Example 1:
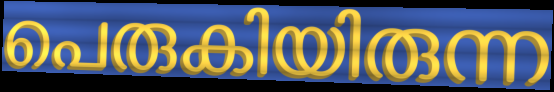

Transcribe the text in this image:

പെരുകിയിരുന്ന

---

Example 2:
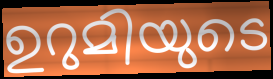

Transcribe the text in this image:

ഉറുമിയുടെ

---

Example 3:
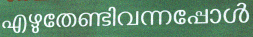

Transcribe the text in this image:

എഴുതേണ്ടിവന്നപ്പോൾ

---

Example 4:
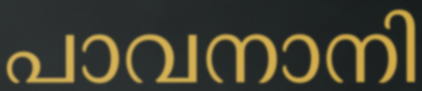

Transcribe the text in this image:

പാവനാനി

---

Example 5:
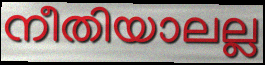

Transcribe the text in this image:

നീതിയാലല്ല